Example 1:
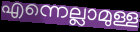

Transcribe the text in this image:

എന്നെല്ലാമുള്ള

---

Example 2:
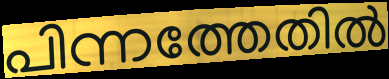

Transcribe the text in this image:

പിന്നത്തേതിൽ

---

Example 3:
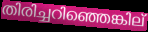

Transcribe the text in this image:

തിരിച്ചറിഞ്ഞെങ്കില്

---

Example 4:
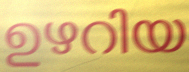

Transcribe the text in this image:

ഉഴറിയ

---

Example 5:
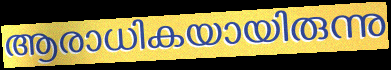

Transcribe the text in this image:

ആരാധികയായിരുന്നു